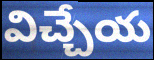
విచ్చేయ